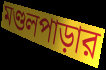
মণ্ডলপাড়ার